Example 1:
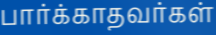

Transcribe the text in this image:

பார்க்காதவர்கள்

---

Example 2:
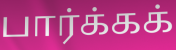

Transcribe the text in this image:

பார்க்கக்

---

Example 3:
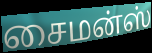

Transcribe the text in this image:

சைமன்ஸ்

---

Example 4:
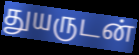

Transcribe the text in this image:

துயருடன்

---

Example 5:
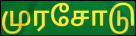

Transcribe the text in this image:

முரசோடு